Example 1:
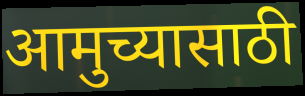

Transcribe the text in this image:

आमुच्यासाठी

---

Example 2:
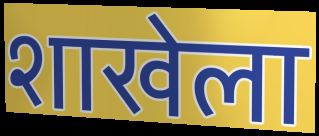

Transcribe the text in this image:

शाखेला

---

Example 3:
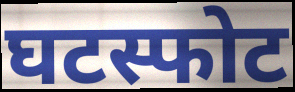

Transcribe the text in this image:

घटस्फोट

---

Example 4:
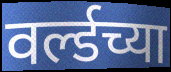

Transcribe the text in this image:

वर्ल्डच्या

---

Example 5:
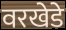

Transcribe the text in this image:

वरखेडे